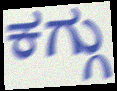
ಕಗ್ಗು